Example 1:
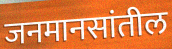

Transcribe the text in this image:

जनमानसांतील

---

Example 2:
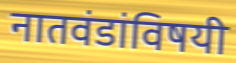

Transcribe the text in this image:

नातवंडांविषयी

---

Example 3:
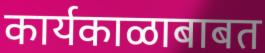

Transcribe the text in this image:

कार्यकाळाबाबत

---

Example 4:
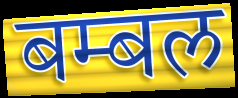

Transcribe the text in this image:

बम्बल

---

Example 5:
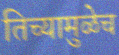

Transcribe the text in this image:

तिच्यामुळेच